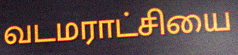
வடமராட்சியை